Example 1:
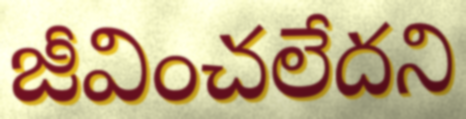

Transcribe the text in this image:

జీవించలేదని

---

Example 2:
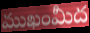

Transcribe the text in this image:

ముఖంమీద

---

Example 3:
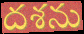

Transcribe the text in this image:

దశను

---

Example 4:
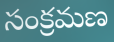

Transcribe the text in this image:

సంక్రమణ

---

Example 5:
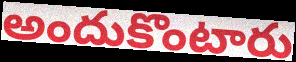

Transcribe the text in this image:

అందుకొంటారు